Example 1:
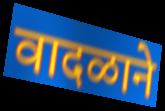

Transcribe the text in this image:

वादळाने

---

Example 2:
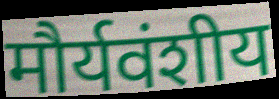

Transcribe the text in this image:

मौर्यवंशीय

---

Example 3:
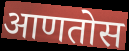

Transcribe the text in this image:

आणतोस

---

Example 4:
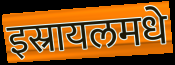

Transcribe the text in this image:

इस्रायलमधे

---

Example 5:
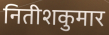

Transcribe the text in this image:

नितीशकुमार